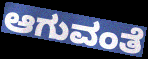
ಆಗುವಂತೆ